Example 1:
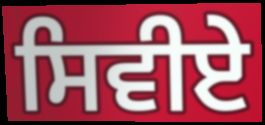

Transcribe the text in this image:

ਸਿਵੀਏ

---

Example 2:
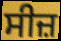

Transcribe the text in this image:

ਸੀਜ਼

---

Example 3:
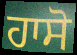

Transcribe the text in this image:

ਹਾਸੋ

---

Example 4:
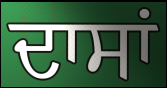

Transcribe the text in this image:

ਦਾਸਾਂ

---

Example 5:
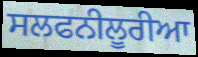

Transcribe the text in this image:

ਸਲਫਨੀਲੂਰੀਆ